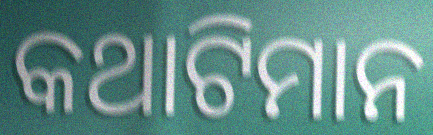
କଥାଟିମାନ